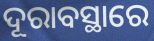
ଦୂରାବସ୍ଥାରେ